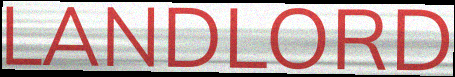
LANDLORD